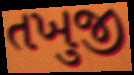
તખુજી